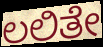
ಲಲಿತೇ